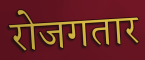
रोजगतार